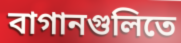
বাগানগুলিতে